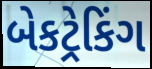
બેકટ્રેકિંગ